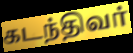
கடந்திவர்